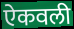
ऐकवली